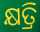
କ୍ଷତ୍ରି